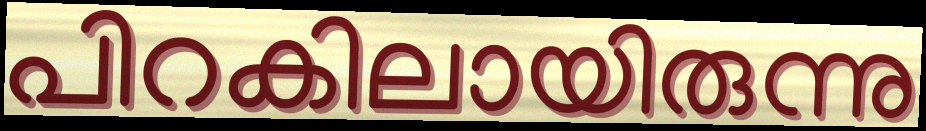
പിറകിലായിരുന്നു